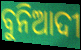
ବୁନିଆଦୀ